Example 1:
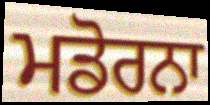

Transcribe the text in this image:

ਮਡੋਰਨਾ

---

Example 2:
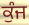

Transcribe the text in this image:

ਕੁੰਜ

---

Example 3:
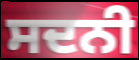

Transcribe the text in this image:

ਸਦਨੀ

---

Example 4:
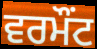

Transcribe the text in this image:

ਵਰਮੌਂਟ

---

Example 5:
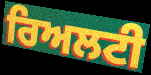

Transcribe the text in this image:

ਰਿਅਲਟੀ